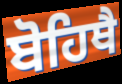
ਬੋਹਿਥੈ